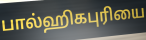
பால்ஹிகபுரியை